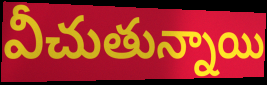
వీచుతున్నాయి